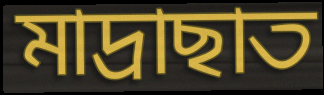
মাদ্ৰাছাত